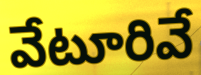
వేటూరివే